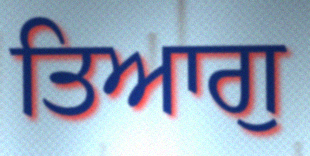
ਤਿਆਗੁ